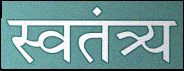
स्वतंत्र्य